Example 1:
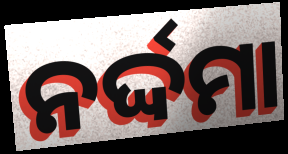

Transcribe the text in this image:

ନର୍ଦ୍ଦମା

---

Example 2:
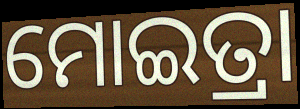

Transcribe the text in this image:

ମୋଇତ୍ରା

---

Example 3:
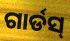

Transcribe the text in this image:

ଗାର୍ଡସ୍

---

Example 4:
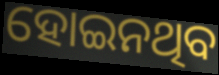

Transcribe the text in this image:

ହୋଇନଥିବ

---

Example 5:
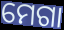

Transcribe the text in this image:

ମେଗା